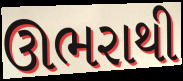
ઊભરાથી